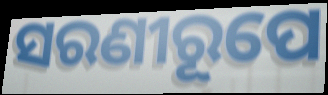
ସରଣୀରୂପେ